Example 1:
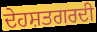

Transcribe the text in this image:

ਦੇਹਸ਼ਤਗਰਦੀ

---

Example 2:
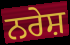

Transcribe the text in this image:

ਨਰੇਸ਼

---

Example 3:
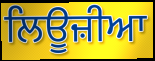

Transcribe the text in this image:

ਲਿਊਜ਼ੀਆ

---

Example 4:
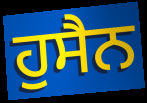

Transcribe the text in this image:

ਹੁਸੈਨ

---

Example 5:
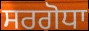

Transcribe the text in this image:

ਸਰਗੋਧਾ